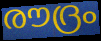
രൗദ്രം